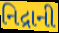
નિદ્રાની